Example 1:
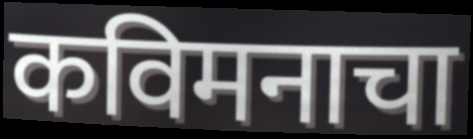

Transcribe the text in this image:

कविमनाचा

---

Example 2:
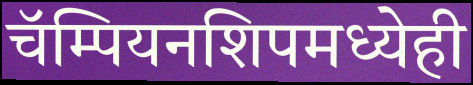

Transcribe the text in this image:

चॅम्पियनशिपमध्येही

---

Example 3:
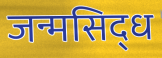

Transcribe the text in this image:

जन्मसिद्ध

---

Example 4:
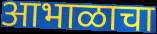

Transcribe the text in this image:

आभाळाचा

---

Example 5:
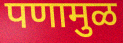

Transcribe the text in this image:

पणामुळ